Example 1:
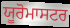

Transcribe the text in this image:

ਯੂਰੋਮਾਸਟਰ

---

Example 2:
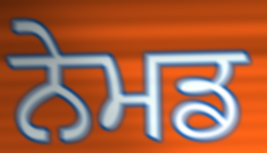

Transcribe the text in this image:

ਨੇਮਡ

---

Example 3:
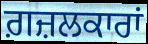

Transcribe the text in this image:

ਗ਼ਜ਼ਲਕਾਰਾਂ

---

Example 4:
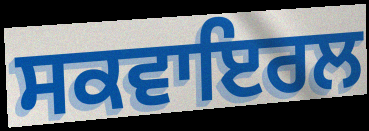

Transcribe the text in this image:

ਸਕਵਾਇਰਲ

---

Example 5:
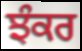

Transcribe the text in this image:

ਝੰਕਰ